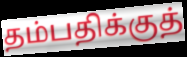
தம்பதிக்குத்